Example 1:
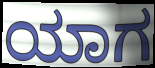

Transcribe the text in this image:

ಯಾಗ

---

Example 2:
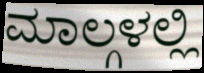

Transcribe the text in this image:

ಮಾಲ್ಗಳಲ್ಲಿ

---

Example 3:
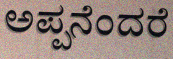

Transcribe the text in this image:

ಅಪ್ಪನೆಂದರೆ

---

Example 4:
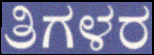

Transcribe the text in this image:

ತಿಗಳರ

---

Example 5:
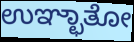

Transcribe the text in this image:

ಉಞ್ಛಾತೋ